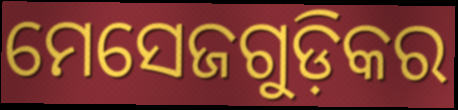
ମେସେଜଗୁଡ଼ିକର